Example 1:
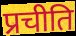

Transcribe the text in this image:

प्रचीति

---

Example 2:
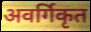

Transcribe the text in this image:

अवर्गिकृत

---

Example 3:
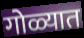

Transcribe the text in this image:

गोळ्यात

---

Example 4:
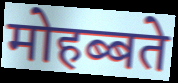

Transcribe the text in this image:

मोहब्बते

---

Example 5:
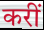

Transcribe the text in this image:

करीं